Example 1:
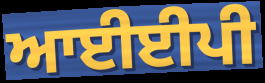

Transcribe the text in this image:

ਆਈਈਪੀ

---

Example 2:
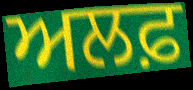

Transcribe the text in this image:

ਅਲਫ਼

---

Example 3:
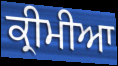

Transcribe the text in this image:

ਕ੍ਰੀਮੀਆ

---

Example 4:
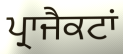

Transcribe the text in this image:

ਪ੍ਰਾਜੈਕਟਾਂ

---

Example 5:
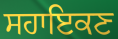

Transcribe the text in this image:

ਸਹਾਇਕਣ